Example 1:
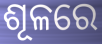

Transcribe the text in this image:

ଶୂଳରେ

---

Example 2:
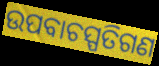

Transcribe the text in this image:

ଉପବାଚସ୍ପତିଗଣ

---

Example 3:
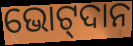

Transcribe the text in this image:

ଭୋଟ୍‌ଦାନ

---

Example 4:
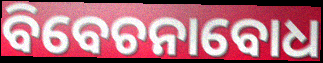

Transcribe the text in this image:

ବିବେଚନାବୋଧ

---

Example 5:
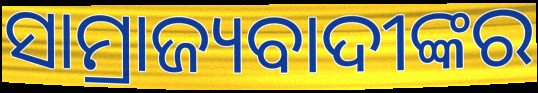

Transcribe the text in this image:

ସାମ୍ରାଜ୍ୟବାଦୀଙ୍କର